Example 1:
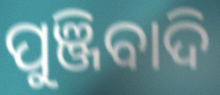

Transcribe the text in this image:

ପୁଞ୍ଜିବାଦି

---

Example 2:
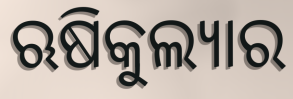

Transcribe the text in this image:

ଋଷିକୁଲ୍ୟାର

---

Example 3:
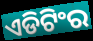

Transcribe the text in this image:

ଏଡିଟିଂର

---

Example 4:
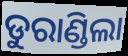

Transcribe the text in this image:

ଡୁରାଣ୍ଡିଲା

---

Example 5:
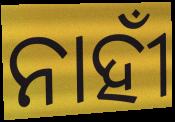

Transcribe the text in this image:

ନାହୀଁ